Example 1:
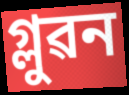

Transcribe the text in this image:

গ্লুৱন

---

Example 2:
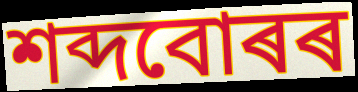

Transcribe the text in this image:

শব্দবোৰৰ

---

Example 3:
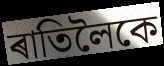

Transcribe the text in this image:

ৰাতিলৈকে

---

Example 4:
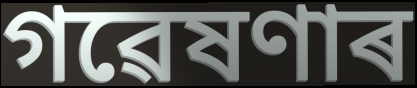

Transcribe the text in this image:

গৱেষণাৰ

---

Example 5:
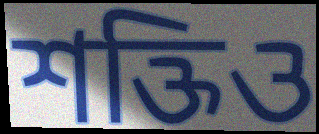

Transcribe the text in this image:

শক্তিও